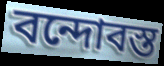
বন্দোবস্ত